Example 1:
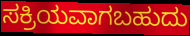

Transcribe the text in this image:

ಸಕ್ರಿಯವಾಗಬಹುದು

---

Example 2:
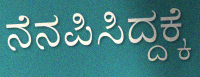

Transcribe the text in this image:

ನೆನಪಿಸಿದ್ದಕ್ಕೆ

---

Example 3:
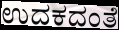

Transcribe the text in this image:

ಉದಕದಂತೆ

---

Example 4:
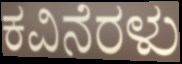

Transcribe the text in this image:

ಕವಿನೆರಳು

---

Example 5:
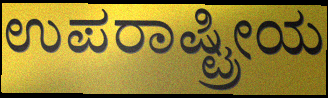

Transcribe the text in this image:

ಉಪರಾಷ್ಟ್ರೀಯ